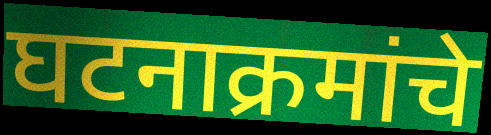
घटनाक्रमांचे